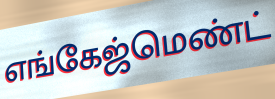
எங்கேஜ்மெண்ட்